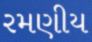
રમણીય